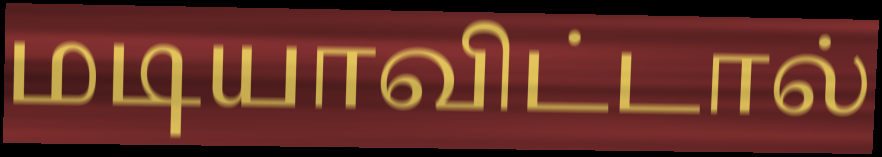
மடியாவிட்டால்